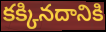
కక్కినదానికి